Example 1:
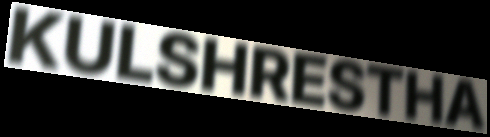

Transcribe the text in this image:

KULSHRESTHA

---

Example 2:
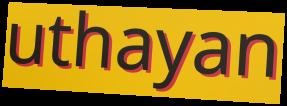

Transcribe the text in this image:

uthayan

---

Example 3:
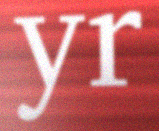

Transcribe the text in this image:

yr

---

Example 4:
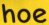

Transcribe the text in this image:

hoe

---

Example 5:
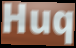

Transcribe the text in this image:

Huq